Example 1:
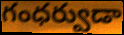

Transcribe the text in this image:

గంధర్వుడా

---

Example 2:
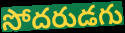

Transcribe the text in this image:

సోదరుడగు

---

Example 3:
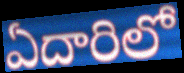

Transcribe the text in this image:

ఏదారిలో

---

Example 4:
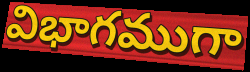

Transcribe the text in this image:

విభాగముగా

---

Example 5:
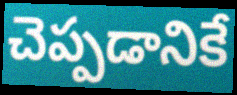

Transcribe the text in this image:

చెప్పడానికే